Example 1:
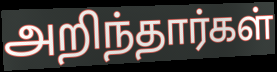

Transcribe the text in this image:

அறிந்தார்கள்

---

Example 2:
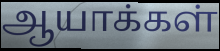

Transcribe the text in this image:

ஆயாக்கள்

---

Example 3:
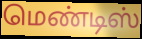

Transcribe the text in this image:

மெண்டிஸ்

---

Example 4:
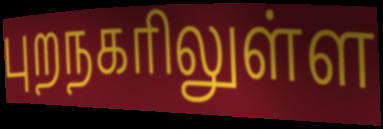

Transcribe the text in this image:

புறநகரிலுள்ள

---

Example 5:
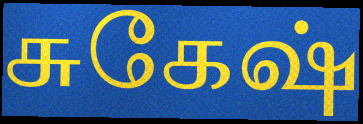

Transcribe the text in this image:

சுகேஷ்